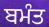
ਬਮੰਤ